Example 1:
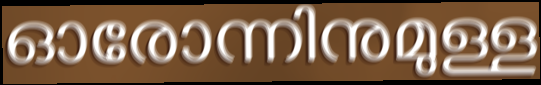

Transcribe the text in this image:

ഓരോന്നിനുമുള്ള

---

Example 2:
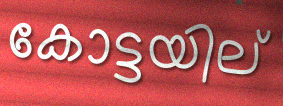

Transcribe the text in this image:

കോട്ടയില്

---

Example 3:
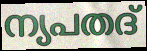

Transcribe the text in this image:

ന്യപതദ്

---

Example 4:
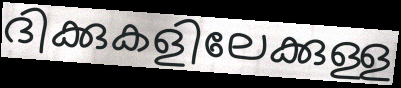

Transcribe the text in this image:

ദിക്കുകളിലേക്കുള്ള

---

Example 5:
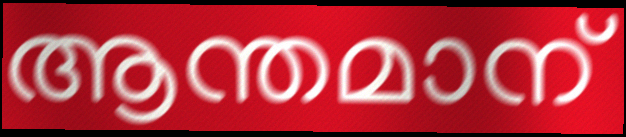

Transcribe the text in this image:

ആന്തമാന്